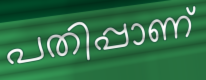
പതിപ്പാണ്